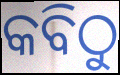
କବିଠୁ